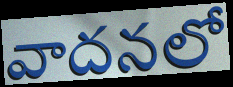
వాదనలో